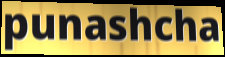
punashcha